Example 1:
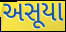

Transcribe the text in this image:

અસૂયા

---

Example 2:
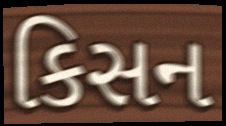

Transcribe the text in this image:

કિસન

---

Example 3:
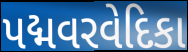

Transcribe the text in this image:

પદ્મવરવેદિકા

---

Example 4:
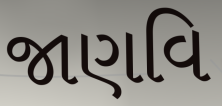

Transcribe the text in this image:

જાણવિ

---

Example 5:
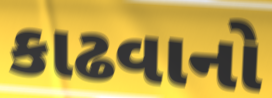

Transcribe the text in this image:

કાઢવાનો